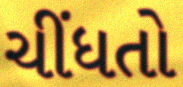
ચીંધતો